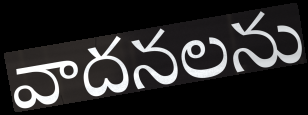
వాదనలను